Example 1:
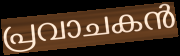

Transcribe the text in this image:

പ്രവാചകൻ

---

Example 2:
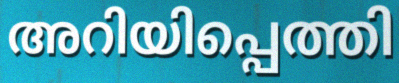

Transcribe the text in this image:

അറിയിപ്പെത്തി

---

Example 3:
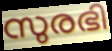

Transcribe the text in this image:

സുരഭി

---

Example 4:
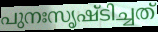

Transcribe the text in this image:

പുനഃസൃഷ്ടിച്ചത്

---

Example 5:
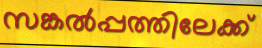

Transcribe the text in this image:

സങ്കൽപ്പത്തിലേക്ക്